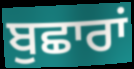
ਬੁਛਾਰਾਂ